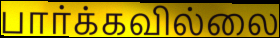
பார்க்கவில்லை